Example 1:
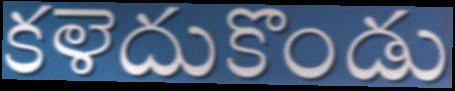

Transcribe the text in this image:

కళెదుకొండు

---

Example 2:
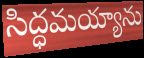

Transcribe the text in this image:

సిద్ధమయ్యాను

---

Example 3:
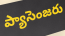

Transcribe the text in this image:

ప్యాసెంజరు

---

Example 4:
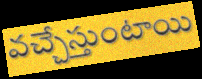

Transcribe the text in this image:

వచ్చేస్తుంటాయి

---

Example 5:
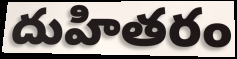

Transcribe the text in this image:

దుహితరం